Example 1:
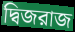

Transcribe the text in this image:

দ্বিজরাজ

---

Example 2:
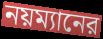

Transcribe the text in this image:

নয়ম্যানের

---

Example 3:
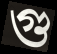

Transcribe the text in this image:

গু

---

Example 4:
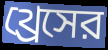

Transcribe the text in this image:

থ্রেসের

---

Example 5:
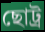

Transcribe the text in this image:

ছোট্র